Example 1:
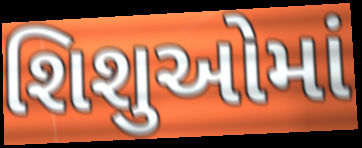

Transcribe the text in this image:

શિશુઓમાં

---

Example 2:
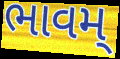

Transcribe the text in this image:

ભાવમ્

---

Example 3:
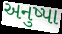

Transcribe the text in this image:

અનુષ્પા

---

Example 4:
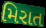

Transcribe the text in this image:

મિરાત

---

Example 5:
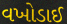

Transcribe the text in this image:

વખોડાઈ